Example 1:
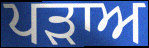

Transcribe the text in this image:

ਪਡ਼ਾਅ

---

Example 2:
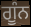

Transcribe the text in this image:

ਗੂੰਨ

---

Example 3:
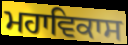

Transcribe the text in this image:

ਮਹਾਵਿਕਾਸ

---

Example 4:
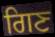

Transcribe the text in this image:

ਗਿਣ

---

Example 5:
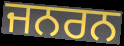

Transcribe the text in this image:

ਜਨਰਨ